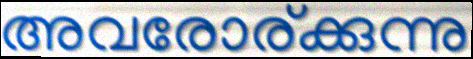
അവരോര്ക്കുന്നു